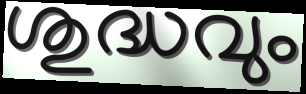
ശുദ്ധവും